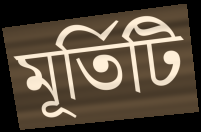
মূর্তিটি